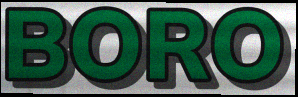
BORO